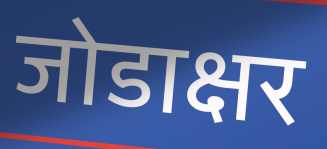
जोडाक्षर